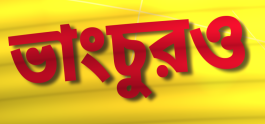
ভাংচুরও